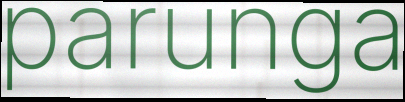
parunga